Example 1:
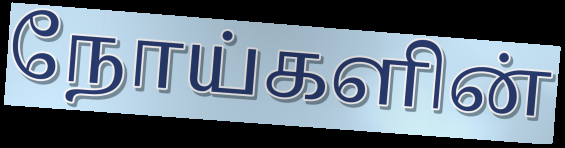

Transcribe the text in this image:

நோய்களின்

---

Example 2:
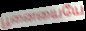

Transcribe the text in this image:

பூனையையே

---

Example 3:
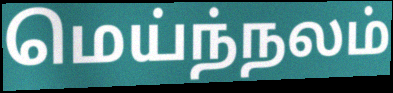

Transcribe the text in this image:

மெய்ந்நலம்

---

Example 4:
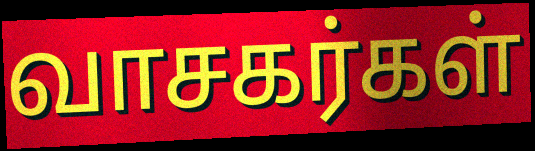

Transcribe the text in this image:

வாசகர்கள்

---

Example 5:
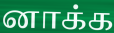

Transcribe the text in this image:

னாக்க